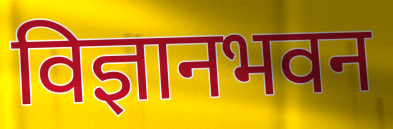
विज्ञानभवन